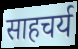
साहचर्य